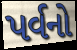
પર્વનો